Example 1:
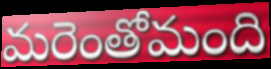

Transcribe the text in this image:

మరెంతోమంది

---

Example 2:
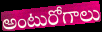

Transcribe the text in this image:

అంటురోగాలు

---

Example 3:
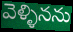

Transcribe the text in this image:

వెళ్ళినను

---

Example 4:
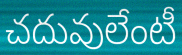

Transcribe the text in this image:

చదువులేంటీ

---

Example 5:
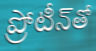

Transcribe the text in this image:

ప్రోటీన్‌తో